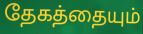
தேகத்தையும்